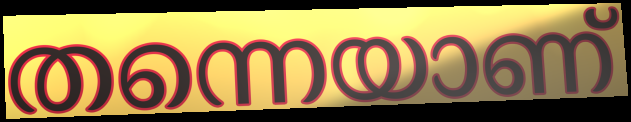
തന്നെയാണ്